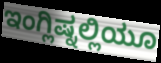
ಇಂಗ್ಲಿಷ್ನಲ್ಲಿಯೂ